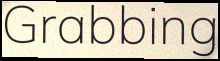
Grabbing